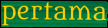
pertama